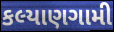
કલ્યાણગામી